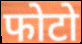
फोटो